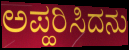
ಅಪ್ಹರಿಸಿದನು